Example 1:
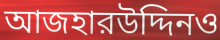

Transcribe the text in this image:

আজহারউদ্দিনও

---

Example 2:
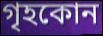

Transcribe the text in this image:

গৃহকোন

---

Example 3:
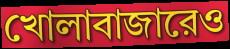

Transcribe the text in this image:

খোলাবাজারেও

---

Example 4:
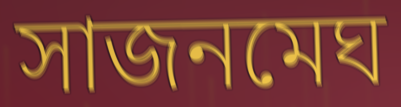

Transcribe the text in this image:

সাজনমেঘ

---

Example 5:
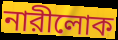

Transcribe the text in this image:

নারীলোক